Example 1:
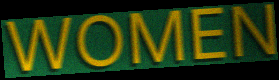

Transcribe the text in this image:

WOMEN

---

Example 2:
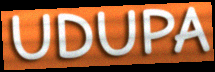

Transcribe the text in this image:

UDUPA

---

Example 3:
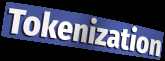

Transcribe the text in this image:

Tokenization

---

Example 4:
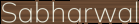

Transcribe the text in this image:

Sabharwal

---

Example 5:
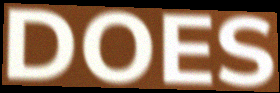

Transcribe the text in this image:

DOES